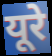
यूरे